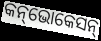
କନ୍‌ଭୋକେସନ୍